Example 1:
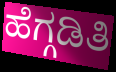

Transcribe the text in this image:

ಹೆಗ್ಗಡಿತಿ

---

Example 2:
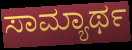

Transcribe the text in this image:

ಸಾಮ್ಯಾರ್ಥ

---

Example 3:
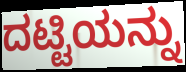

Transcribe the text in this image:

ದಟ್ಟಿಯನ್ನು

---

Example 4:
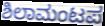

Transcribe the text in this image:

ಶಿಲಾಮಂಟಪ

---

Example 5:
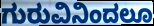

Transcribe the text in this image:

ಗುರುವಿನಿಂದಲೂ